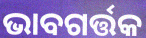
ଭାବଗର୍ତ୍ତକ